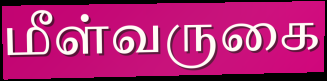
மீள்வருகை